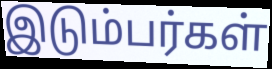
இடும்பர்கள்